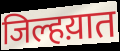
जिल्हय़ात